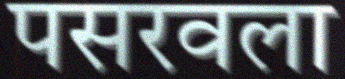
पसरवला